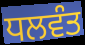
ਧਲਵੰਤ